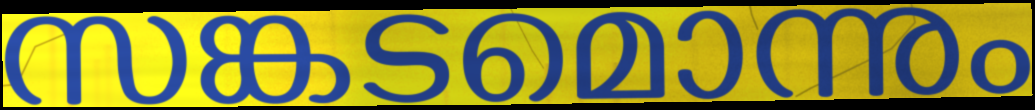
സങ്കടമൊന്നും